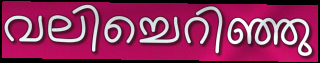
വലിച്ചെറിഞ്ഞു